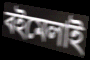
বইমেলাই